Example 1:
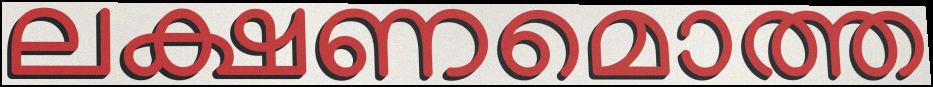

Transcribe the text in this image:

ലക്ഷണമൊത്ത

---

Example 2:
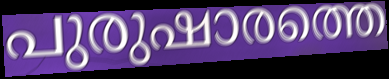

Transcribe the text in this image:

പുരുഷാരത്തെ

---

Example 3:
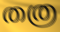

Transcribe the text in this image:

തത്ര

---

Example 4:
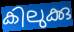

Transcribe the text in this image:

കിലുക്കു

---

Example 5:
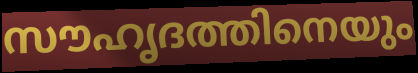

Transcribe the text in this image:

സൗഹൃദത്തിനെയും